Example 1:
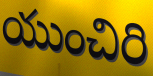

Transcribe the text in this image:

యుంచిరి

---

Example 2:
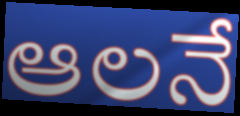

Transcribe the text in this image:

ఆలనే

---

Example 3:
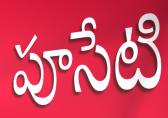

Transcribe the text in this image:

పూసేటి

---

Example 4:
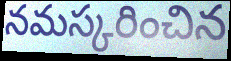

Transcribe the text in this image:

నమస్కరించిన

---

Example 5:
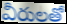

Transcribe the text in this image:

వీరులతో